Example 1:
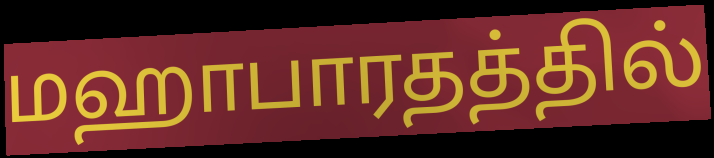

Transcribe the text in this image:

மஹாபாரதத்தில்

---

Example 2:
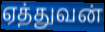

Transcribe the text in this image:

ஏத்துவன்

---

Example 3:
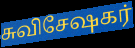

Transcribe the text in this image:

சுவிசேஷகர்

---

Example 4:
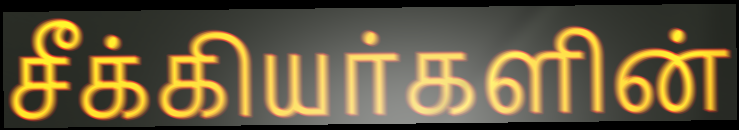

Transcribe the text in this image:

சீக்கியர்களின்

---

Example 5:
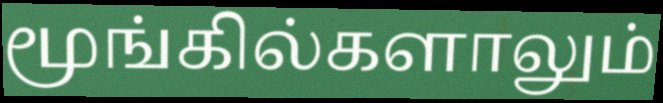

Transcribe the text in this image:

மூங்கில்களாலும்